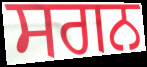
ਸਗਨ